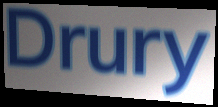
Drury